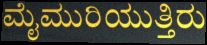
ಮೈಮುರಿಯುತ್ತಿರು